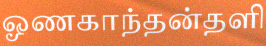
ஓணகாந்தன்தளி